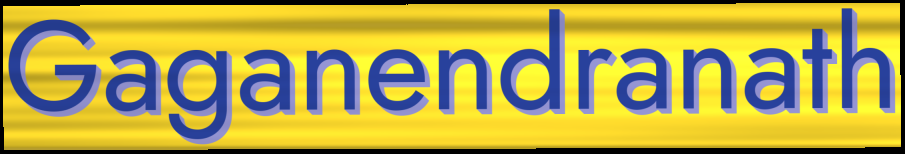
Gaganendranath